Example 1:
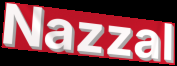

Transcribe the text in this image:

Nazzal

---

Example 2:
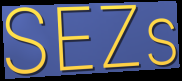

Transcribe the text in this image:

SEZs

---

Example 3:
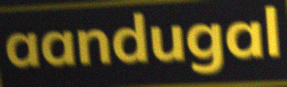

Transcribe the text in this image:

aandugal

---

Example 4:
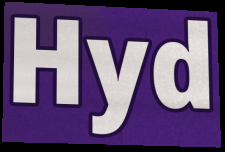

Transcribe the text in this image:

Hyd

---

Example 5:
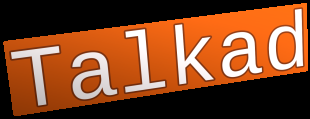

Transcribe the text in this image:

Talkad